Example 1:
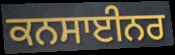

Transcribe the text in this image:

ਕਨਸਾਈਨਰ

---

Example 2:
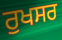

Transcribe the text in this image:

ਰੁਖਸਰ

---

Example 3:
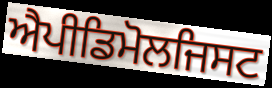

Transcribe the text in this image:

ਐਪੀਡਿਮੋਲਜਿਸਟ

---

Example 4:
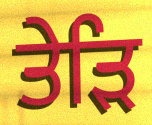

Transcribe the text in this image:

ਤੇੜਿ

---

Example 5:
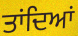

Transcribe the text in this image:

ਤਾਂਦਿਆਂ